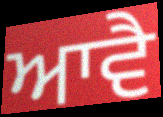
ਆਵੈ